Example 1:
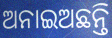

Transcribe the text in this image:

ଅନାଇଅଛନ୍ତି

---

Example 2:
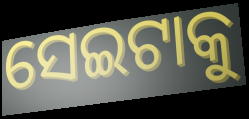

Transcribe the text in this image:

ସେଇଟାକୁ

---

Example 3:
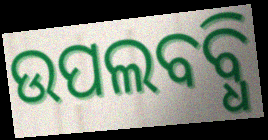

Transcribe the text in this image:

ଉପଲବବ୍ଧି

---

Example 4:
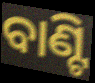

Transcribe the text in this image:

ବାଣ୍ଟି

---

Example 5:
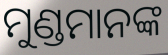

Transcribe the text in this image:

ମୁଣ୍ଡମାନଙ୍କ